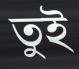
তুই